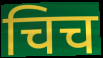
चिच